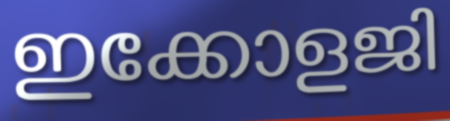
ഇക്കോളജി